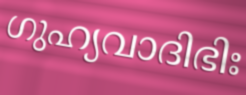
ഗുഹ്യവാദിഭിഃ